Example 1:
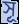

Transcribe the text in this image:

সূ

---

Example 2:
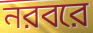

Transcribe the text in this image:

নরবরে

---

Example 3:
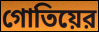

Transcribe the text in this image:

গোতিয়ের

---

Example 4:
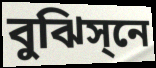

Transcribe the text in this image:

বুঝিস্‌নে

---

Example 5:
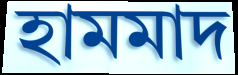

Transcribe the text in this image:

হামমাদ